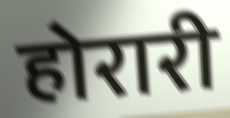
होरारी